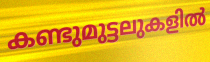
കണ്ടുമുട്ടലുകളിൽ